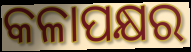
କଳାପକ୍ଷର